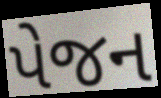
પેજન